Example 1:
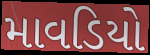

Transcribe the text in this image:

માવડિયો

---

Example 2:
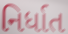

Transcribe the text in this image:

નિર્ધાત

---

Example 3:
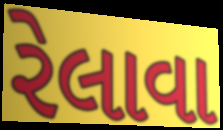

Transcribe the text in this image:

રેલાવા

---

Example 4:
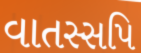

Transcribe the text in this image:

વાતસ્સપિ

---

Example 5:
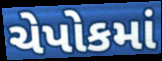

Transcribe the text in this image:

ચેપોકમાં